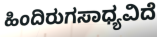
ಹಿಂದಿರುಗಸಾಧ್ಯವಿದೆ